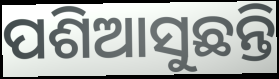
ପଶିଆସୁଛନ୍ତି